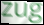
zug